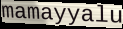
mamayyalu